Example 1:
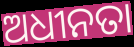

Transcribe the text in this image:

ଅଧୀନତା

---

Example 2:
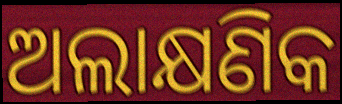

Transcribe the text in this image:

ଅଲାକ୍ଷଣିକ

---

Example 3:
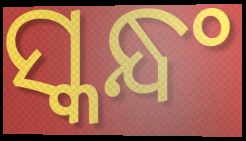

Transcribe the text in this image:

ସ୍କନ୍ଧଂ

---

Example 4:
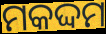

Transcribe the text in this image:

ମକଦ୍ଦମ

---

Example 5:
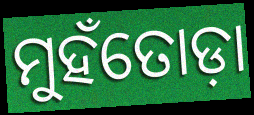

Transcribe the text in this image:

ମୁହଁତୋଡ଼ା